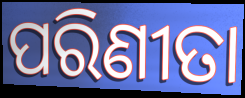
ପରିଣୀତା